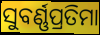
ସୁବର୍ଣ୍ଣପ୍ରତିମା